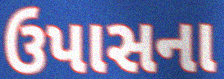
ઉપાસના